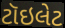
ટૉઇલેટ